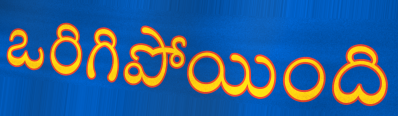
ఒరిగిపోయింది